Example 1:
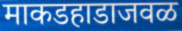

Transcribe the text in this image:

माकडहाडाजवळ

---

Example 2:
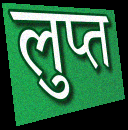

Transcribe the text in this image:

लुप्त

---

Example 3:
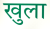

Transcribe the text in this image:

खुला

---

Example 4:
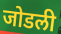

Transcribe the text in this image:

जोडली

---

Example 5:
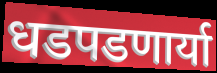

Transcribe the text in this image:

धडपडणार्या